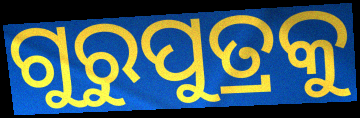
ଗୁରୁପୁତ୍ରକୁ